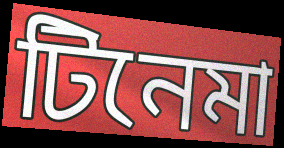
টিনেমা